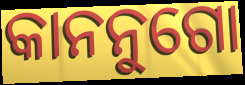
କାନନୁଗୋ